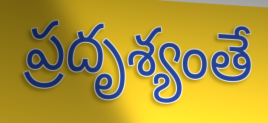
ప్రదృశ్యంతే